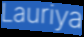
Lauriya